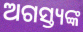
ଅଗସ୍ତ୍ୟଙ୍କ